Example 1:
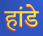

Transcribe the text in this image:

हांडे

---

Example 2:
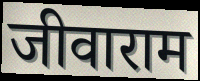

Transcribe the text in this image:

जीवाराम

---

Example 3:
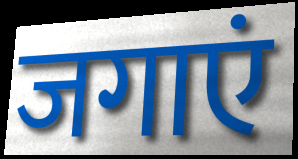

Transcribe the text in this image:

जगाएं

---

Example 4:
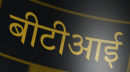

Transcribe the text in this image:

बीटीआई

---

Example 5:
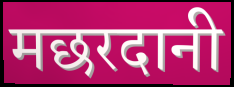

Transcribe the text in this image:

मछरदानी